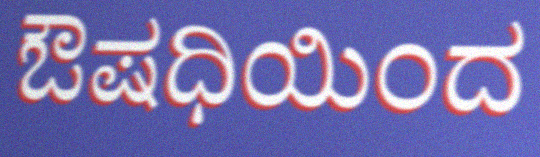
ಔಷಧಿಯಿಂದ